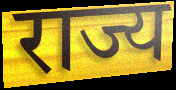
राज्य